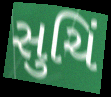
સુચિં